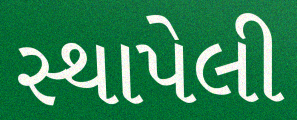
સ્‍થાપેલી